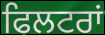
ਫਿਲਟਰਾਂ